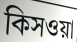
কিসওয়া